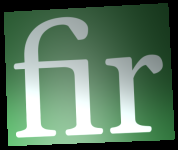
fir